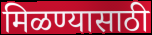
मिळण्यासाठी